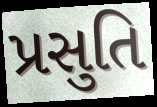
પ્રસુતિ